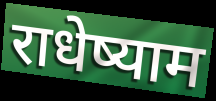
राधेष्याम